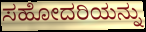
ಸಹೋದರಿಯನ್ನು